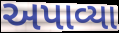
અપાવ્યા